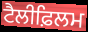
ਟੈਲੀਫ਼ਿਲਮ